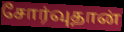
சோர்வுதான்